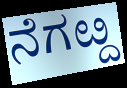
ನೆಗೞ್ದ